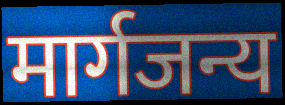
मार्गजन्य